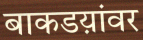
बाकडय़ांवर